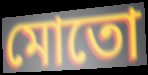
মোতো